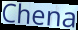
Chena